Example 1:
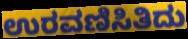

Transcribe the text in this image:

ಉರವಣಿಸಿತಿದು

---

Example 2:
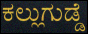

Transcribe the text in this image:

ಕಲ್ಲುಗುಡ್ಡೆ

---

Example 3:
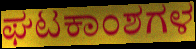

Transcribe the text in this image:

ಘಟಕಾಂಶಗಳ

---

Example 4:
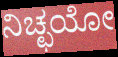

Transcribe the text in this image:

ನಿಚ್ಛಯೋ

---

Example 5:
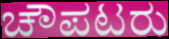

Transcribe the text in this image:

ಚೌಪಟರು